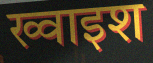
ख्वाइश